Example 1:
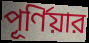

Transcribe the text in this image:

পূর্ণিয়ার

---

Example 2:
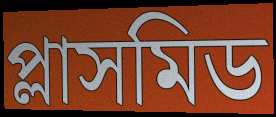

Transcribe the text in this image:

প্লাসমিড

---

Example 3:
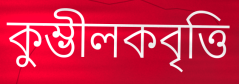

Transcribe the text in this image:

কুম্ভীলকবৃত্তি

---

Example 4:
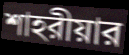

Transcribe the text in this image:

শাহরীয়ার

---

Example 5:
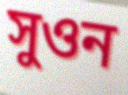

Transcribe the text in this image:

সুওন